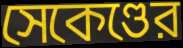
সেকেণ্ডের